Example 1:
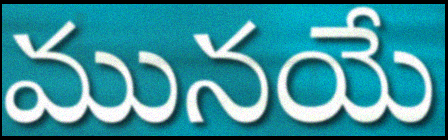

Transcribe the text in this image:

మునయే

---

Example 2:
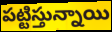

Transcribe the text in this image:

పట్టిస్తున్నాయి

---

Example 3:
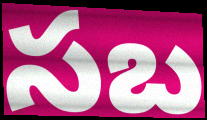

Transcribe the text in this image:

సబ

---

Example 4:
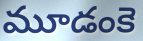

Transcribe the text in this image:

మూడంకె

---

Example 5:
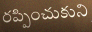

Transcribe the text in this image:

రప్పించుకుని